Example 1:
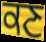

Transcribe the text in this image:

ਕਣ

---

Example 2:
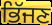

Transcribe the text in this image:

ਭਿੱਜਣ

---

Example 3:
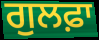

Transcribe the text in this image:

ਗੁਲਫ਼ਾ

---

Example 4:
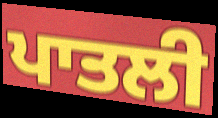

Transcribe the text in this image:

ਪਾਤਲੀ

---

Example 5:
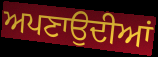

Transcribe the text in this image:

ਅਪਣਾਉਦੀਆਂ